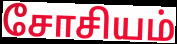
சோசியம்